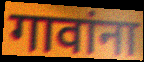
गावांना